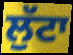
ਲੁੱਟਾ